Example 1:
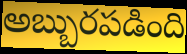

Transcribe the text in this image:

అబ్బురపడింది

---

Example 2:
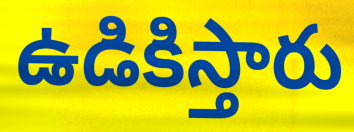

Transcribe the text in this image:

ఉడికిస్తారు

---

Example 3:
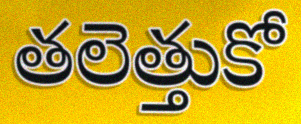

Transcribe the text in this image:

తలెత్తుకో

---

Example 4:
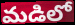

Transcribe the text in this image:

మడిలో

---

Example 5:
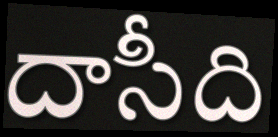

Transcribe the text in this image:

దాసీది